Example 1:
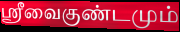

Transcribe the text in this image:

ஸ்ரீவைகுண்டமும்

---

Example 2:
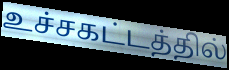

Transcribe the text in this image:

உச்சகட்டத்தில்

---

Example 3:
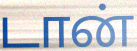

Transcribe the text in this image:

டான்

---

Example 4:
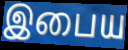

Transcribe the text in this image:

இபைய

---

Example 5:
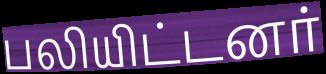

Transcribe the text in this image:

பலியிட்டனர்